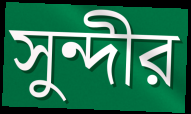
সুন্দীর